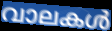
വാലകൾ